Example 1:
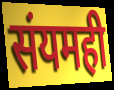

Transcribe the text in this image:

संयमही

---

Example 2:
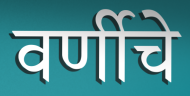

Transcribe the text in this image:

वर्णीचे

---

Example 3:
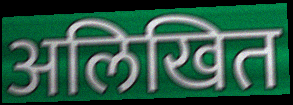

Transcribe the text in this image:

अलिखित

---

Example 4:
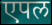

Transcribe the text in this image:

एपल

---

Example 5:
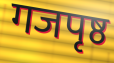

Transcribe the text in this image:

गजपृष्ठ